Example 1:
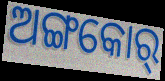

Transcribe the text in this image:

ଅଙ୍ଗକୋର୍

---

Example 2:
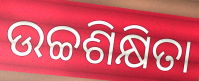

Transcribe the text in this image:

ଉଚ୍ଚଶିକ୍ଷିତା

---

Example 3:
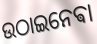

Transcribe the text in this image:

ଉଠାଇନେଵା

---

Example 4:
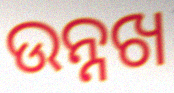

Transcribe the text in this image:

ଉନ୍ନଖ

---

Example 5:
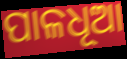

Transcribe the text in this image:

ପାଳଧୂଆ